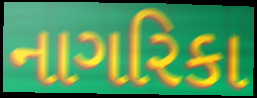
નાગરિકા